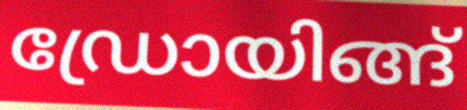
ഡ്രോയിങ്ങ്